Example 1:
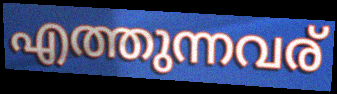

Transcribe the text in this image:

എത്തുന്നവര്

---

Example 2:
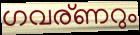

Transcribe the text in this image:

ഗവര്ണറും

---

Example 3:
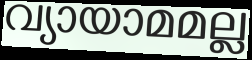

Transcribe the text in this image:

വ്യായാമമല്ല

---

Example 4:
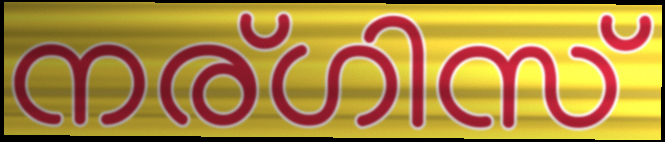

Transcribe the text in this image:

നര്ഗിസ്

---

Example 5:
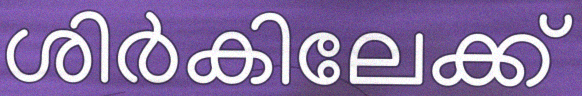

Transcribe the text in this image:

ശിർകിലേക്ക്